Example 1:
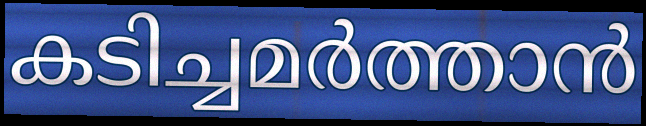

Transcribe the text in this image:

കടിച്ചമർത്താൻ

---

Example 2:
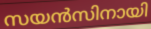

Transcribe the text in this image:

സയൻസിനായി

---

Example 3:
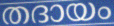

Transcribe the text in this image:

തദായം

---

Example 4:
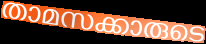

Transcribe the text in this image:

താമസക്കാരുടെ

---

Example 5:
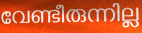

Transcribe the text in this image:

വേണ്ടീരുന്നില്ല